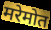
मरेमोत